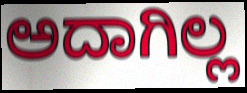
ಅದಾಗಿಲ್ಲ